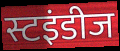
स्टइंडीज